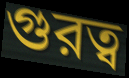
গুরত্ব